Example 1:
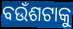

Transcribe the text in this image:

ବଉଁଶଟାକୁ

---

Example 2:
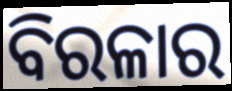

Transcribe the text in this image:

ବିରଳାର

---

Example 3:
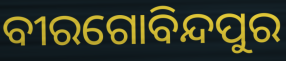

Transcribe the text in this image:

ବୀରଗୋବିନ୍ଦପୁର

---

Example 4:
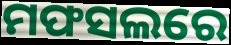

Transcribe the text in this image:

ମଫସଲରେ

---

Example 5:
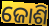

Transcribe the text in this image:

ଜୋଶି